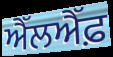
ਐੱਲਐੱਫ਼